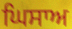
ਘਿਸਾਅ